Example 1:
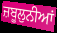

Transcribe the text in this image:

ਜ਼ਬੂਲੁਨੀਆਂ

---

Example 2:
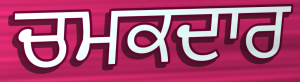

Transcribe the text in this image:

ਚਮਕਦਾਰ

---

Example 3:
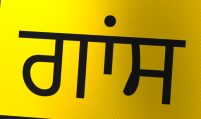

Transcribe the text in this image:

ਗਾਂਸ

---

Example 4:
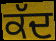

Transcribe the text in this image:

ਕੱਦ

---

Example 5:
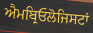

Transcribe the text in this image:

ਐਮਬ੍ਰਿਓਲੋਜਿਸਟਾਂ